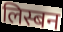
लिस्बन